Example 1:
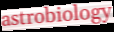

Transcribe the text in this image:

astrobiology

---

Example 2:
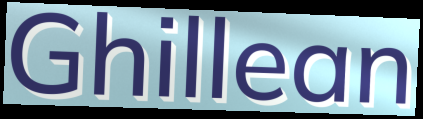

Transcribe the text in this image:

Ghillean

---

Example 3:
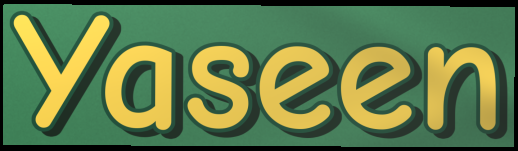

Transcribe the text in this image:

Yaseen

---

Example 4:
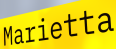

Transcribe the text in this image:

Marietta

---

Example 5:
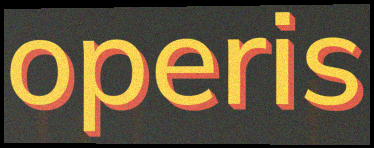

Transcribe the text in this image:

operis